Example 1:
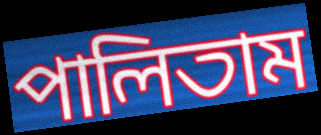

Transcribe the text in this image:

পালিতাম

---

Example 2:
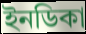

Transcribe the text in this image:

ইনডিকা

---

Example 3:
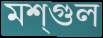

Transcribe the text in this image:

মশ্গুল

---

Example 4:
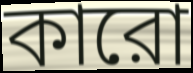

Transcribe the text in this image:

কারো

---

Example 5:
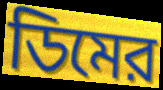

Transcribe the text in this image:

ডিমের